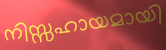
നിസ്സഹായമായി